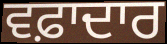
ਵਫ਼ਾਦਾਰ